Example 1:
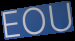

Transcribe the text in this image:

EOU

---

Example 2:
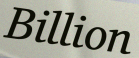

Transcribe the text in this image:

Billion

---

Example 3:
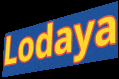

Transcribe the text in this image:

Lodaya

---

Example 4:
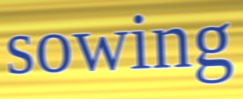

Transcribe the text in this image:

sowing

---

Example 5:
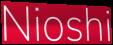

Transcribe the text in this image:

Nioshi